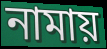
নামায়